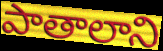
పాతాలాని